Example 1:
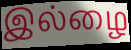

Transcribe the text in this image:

இல்ழை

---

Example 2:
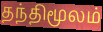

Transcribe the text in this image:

தந்திமூலம்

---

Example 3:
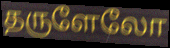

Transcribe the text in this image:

தருளேலோ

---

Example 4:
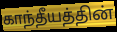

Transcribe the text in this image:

காந்தீயத்தின்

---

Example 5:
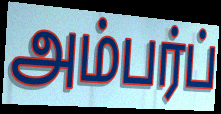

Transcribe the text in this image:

அம்பர்ப்